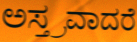
ಅಸ್ತ್ರವಾದರೆ